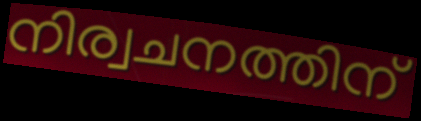
നിര്വചനത്തിന്